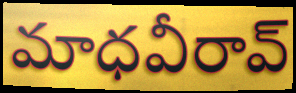
మాధవీరావ్